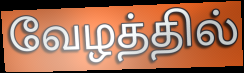
வேழத்தில்